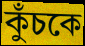
কুঁচকে